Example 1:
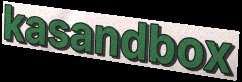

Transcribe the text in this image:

kasandbox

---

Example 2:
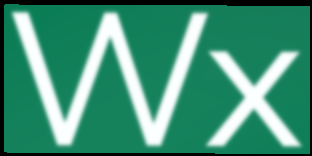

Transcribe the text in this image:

Wx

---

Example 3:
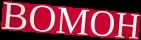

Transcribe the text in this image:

BOMOH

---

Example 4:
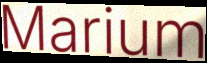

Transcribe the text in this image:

Marium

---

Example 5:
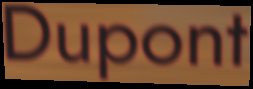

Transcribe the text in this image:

Dupont